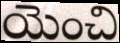
యెంచి